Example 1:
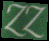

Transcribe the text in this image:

ZZ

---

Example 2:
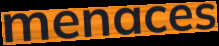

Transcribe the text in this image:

menaces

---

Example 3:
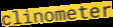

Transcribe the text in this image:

clinometer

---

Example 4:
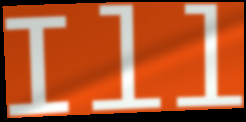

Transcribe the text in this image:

Ill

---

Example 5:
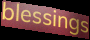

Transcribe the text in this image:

blessings